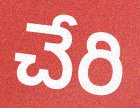
చేరి